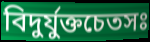
বিদুর্যুক্তচেতসঃ